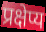
प्रक्षेप्य